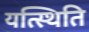
यत्स्थिति